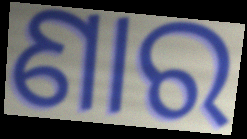
ଣାର